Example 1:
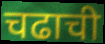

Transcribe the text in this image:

चढाची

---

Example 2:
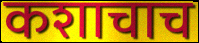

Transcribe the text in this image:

कशाचाच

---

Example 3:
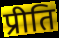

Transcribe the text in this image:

प्रीति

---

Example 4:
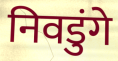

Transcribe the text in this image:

निवडुंगे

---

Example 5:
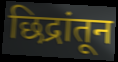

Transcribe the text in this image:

छिद्रांतून